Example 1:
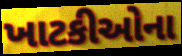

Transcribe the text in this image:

ખાટકીઓના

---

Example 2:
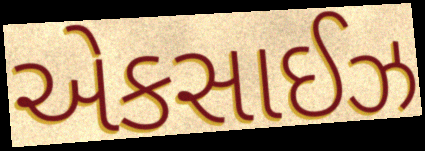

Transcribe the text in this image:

એકસાઈઝ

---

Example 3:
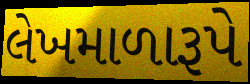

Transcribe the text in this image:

લેખમાળારૂપે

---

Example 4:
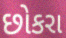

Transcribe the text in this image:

છોકરા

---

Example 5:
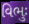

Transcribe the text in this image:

વિભુઃ